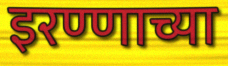
इरण्णाच्या